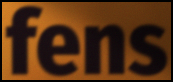
fens